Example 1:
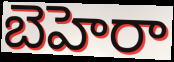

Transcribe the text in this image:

బెహెరా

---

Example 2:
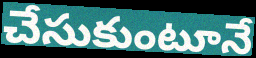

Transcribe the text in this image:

చేసుకుంటూనే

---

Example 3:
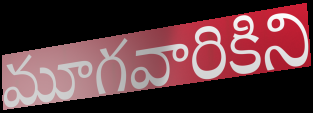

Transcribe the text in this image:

మూగవారికిని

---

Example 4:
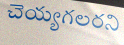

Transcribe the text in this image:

చెయ్యగలరని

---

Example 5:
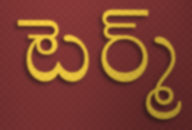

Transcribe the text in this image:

టెర్మ్